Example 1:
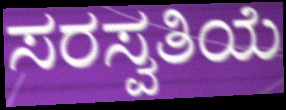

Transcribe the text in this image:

ಸರಸ್ವತಿಯೆ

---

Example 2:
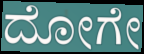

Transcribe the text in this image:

ದೋಗೇ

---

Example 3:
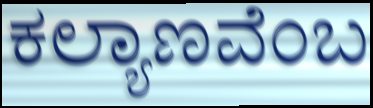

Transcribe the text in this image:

ಕಲ್ಯಾಣವೆಂಬ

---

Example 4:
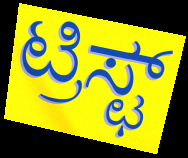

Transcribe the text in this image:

ಟ್ರಿಸ್ಟ್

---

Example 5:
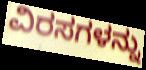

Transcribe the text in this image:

ವಿರಸಗಳನ್ನು